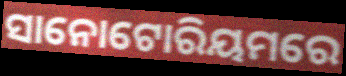
ସାନୋଟୋରିୟମରେ